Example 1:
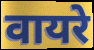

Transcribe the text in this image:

वायरे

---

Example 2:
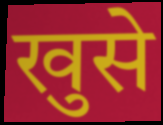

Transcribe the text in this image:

खुसे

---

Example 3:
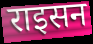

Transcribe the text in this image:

राइसन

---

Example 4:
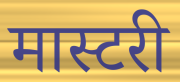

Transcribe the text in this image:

मास्टरी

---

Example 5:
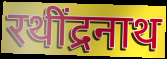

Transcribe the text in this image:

रथींद्रनाथ